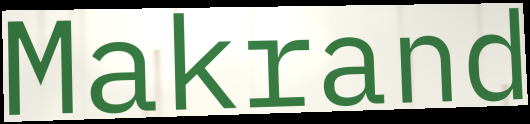
Makrand